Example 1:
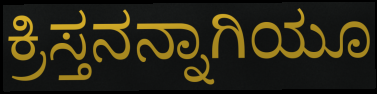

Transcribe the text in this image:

ಕ್ರಿಸ್ತನನ್ನಾಗಿಯೂ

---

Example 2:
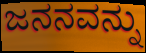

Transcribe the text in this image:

ಜನನವನ್ನು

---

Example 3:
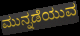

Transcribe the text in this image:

ಮುನ್ನಡೆಯುವ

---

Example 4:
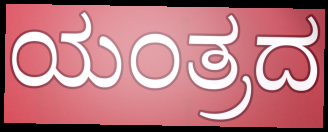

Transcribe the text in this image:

ಯಂತ್ರದ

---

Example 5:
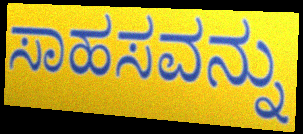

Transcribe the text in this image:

ಸಾಹಸವನ್ನು